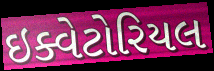
ઇક્વેટોરિયલ